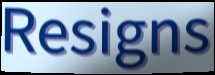
Resigns